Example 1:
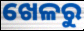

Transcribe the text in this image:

ଖେଳରୁ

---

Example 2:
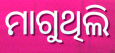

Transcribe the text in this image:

ମାଗୁଥିଲି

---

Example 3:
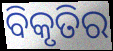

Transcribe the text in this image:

ବିକୃତିର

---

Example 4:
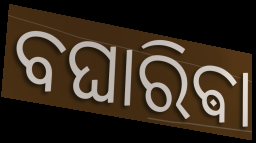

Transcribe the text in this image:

ବଘାରିଵା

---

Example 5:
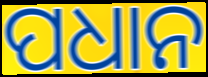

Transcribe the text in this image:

ପଧାନ